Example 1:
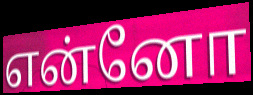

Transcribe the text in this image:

என்னோ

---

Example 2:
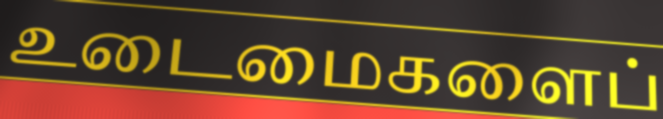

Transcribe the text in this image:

உடைமைகளைப்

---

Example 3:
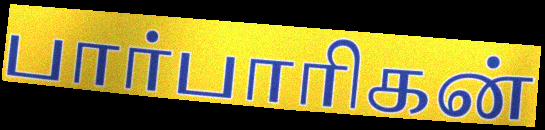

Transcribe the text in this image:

பார்பாரிகன்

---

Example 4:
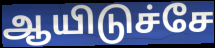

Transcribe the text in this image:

ஆயிடுச்சே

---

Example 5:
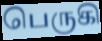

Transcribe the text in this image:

பெருகி